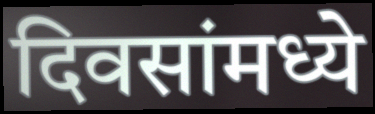
दिवसांमध्ये